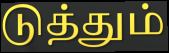
டுத்தும்